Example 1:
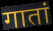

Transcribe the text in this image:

गातां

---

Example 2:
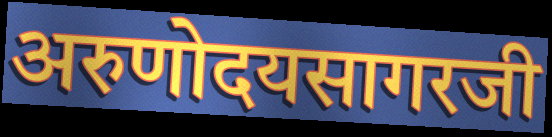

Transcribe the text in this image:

अरुणोदयसागरजी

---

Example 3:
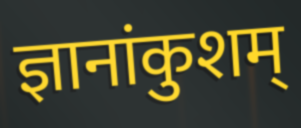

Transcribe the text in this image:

ज्ञानांकुशम्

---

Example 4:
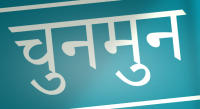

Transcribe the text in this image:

चुनमुन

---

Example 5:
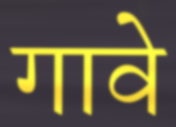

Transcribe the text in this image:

गावे